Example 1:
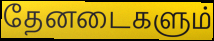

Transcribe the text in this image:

தேனடைகளும்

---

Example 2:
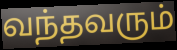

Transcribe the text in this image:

வந்தவரும்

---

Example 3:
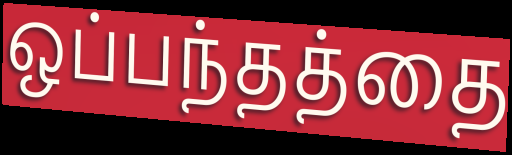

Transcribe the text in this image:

ஒப்பந்தத்தை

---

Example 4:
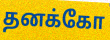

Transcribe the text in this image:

தனக்கோ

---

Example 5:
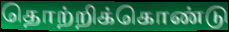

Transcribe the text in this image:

தொற்றிக்கொண்டு